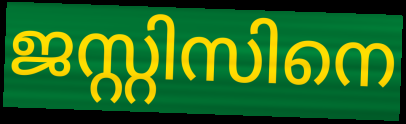
ജസ്റ്റിസിനെ